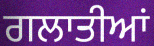
ਗਲਾਤੀਆਂ